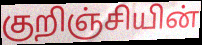
குறிஞ்சியின்